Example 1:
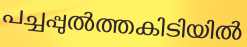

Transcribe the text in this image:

പച്ചപ്പുൽത്തകിടിയിൽ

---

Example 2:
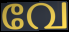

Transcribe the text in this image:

വേ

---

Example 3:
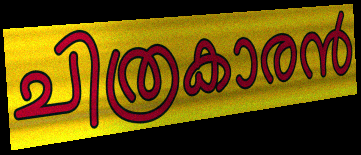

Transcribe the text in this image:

ചിത്രകാരൻ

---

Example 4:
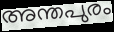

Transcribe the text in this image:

അന്തപുരം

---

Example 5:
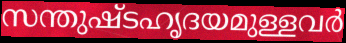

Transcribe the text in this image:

സന്തുഷ്ടഹൃദയമുള്ളവർ